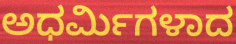
ಅಧರ್ಮಿಗಳಾದ